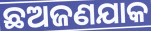
ଛଅଜଣଯାକ